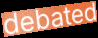
debated